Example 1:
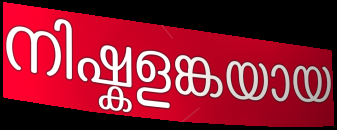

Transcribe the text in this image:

നിഷ്കളങ്കയായ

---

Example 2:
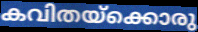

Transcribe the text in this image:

കവിതയ്ക്കൊരു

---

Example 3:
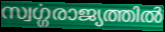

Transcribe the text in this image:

സ്വൎഗ്ഗരാജ്യത്തിൽ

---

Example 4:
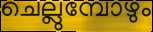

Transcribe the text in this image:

ചെല്ലുമ്പോഴും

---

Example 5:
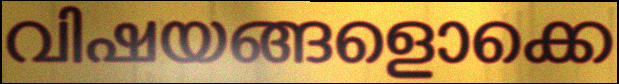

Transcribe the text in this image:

വിഷയങ്ങളൊക്കെ